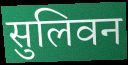
सुलिवन